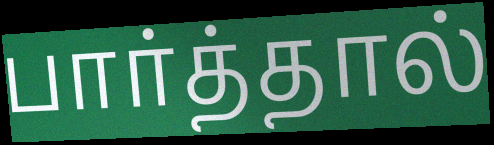
பார்த்தால்